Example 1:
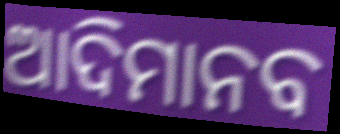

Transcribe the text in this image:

ଆଦିମାନବ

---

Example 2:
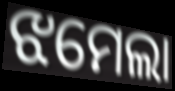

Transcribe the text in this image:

ଝମେଲା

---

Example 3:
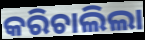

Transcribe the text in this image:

କରିଚାଲିଲା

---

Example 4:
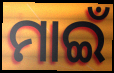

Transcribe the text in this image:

ମାଇଁ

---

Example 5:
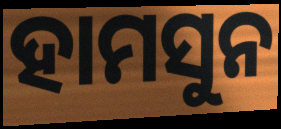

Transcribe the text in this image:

ହାମସୁନ